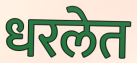
धरलेत